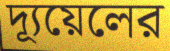
দ্যূয়েলের